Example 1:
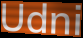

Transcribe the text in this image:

Udni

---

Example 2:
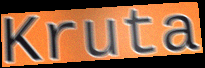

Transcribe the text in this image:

Kruta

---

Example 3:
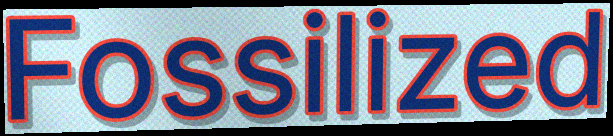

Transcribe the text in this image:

Fossilized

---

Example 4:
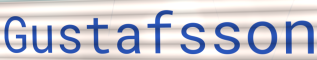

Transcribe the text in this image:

Gustafsson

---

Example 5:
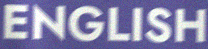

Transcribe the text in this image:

ENGLISH